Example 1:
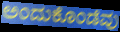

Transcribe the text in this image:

ಅಂದುಕೊಂಡೆವು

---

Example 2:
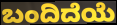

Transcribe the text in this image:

ಬಂದಿದೆಯೆ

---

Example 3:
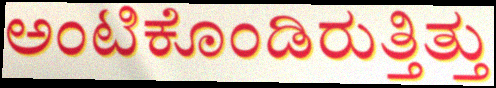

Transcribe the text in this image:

ಅಂಟಿಕೊಂಡಿರುತ್ತಿತ್ತು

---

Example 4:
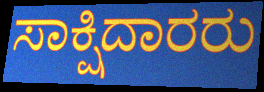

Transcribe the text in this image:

ಸಾಕ್ಷಿದಾರರು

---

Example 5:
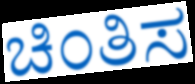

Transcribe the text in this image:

ಚಿಂತಿಸ